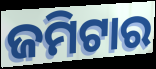
ଜମିଟାର